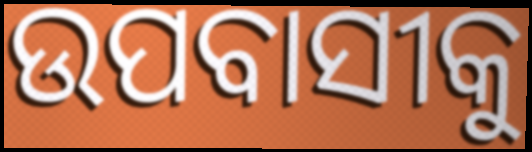
ଉପବାସୀକୁ